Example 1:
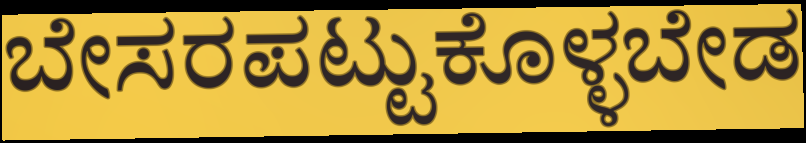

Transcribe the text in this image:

ಬೇಸರಪಟ್ಟುಕೊಳ್ಳಬೇಡ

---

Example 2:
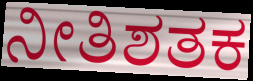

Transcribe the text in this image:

ನೀತಿಶತಕ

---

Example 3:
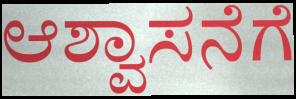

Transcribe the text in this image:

ಆಶ್ವಾಸನೆಗೆ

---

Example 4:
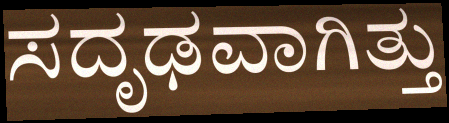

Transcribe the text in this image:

ಸದೃಢವಾಗಿತ್ತು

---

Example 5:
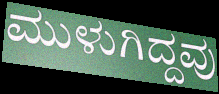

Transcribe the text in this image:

ಮುಳುಗಿದ್ದವು